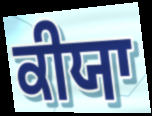
ਕੀਯਾ